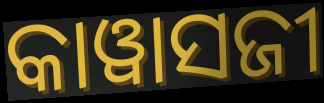
କାୱାସଜୀ